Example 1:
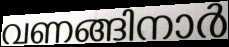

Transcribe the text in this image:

വണങ്ങിനാർ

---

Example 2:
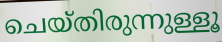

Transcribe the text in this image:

ചെയ്തിരുന്നുള്ളൂ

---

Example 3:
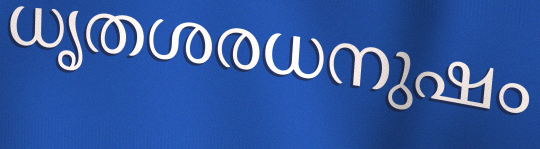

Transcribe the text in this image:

ധൃതശരധനുഷം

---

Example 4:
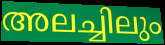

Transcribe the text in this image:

അലച്ചിലും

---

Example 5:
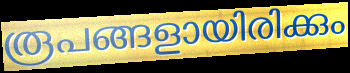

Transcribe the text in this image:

രൂപങ്ങളായിരിക്കും